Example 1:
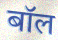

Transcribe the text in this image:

बॉल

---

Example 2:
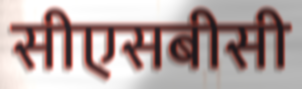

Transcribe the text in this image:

सीएसबीसी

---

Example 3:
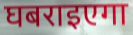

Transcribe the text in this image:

घबराइएगा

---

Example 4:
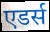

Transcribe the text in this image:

एडर्स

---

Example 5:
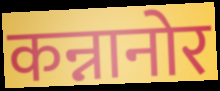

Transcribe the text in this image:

कन्नानोर